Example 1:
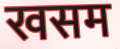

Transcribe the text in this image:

खसम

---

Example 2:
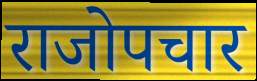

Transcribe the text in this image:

राजोपचार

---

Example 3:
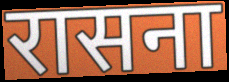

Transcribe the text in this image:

रासना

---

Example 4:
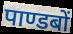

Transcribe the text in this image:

पाण्डबों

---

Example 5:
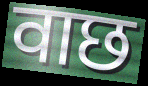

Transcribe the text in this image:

वाछ